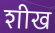
शीख